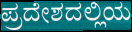
ಪ್ರದೇಶದಲ್ಲಿಯ